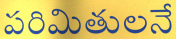
పరిమితులనే